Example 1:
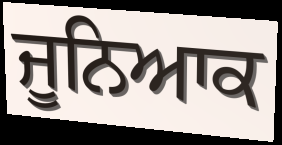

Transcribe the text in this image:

ਜੂਨਿਆਕ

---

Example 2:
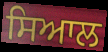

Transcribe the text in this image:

ਸਿਆਲ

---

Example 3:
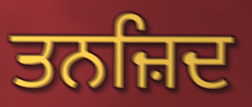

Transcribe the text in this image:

ਤਨਜ਼ਿਦ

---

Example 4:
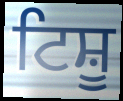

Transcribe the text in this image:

ਟਿਸ਼ੂ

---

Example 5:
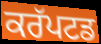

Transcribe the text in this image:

ਕਰੱਪਟਡ